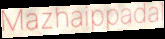
Mazhaippadal